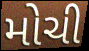
મોચી